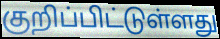
குறிப்பிட்டுள்ளது